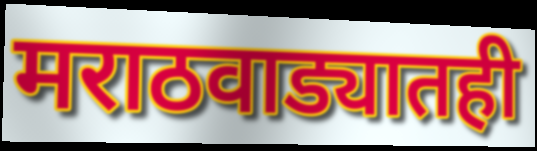
मराठवाड्यातही